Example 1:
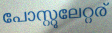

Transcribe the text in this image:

പോസ്റ്റുലേറ്റര്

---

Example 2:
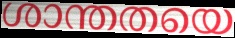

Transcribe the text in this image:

ശാന്തതയെ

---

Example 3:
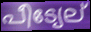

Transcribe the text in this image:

പീട്യേല്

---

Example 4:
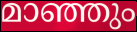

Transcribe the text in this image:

മാഞ്ഞും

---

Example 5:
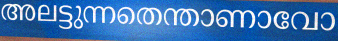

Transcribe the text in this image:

അലട്ടുന്നതെന്താണാവോ